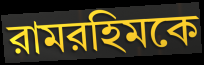
রামরহিমকে